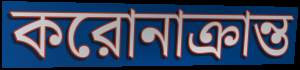
করোনাক্রান্ত